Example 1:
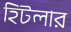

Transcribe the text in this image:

হিটলার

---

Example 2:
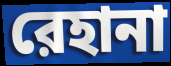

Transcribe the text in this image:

রেহানা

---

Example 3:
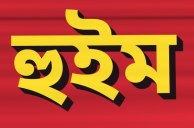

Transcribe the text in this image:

হুইম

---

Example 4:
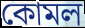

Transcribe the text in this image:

কোমল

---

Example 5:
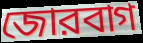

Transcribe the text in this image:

জোরবাগ